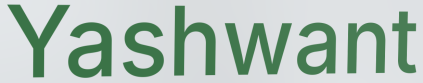
Yashwant